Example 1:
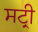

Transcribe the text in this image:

ਸਟ੍ਰੀ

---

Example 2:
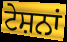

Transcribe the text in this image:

ਟੇਸ਼ਨਾਂ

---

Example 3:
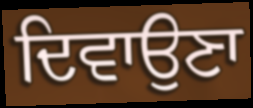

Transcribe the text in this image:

ਦਿਵਾਉਣਾ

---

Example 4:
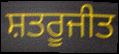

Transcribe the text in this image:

ਸ਼ਤਰੂਜੀਤ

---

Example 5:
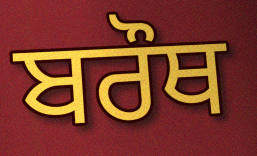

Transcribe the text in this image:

ਬਰੌਥ